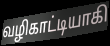
வழிகாட்டியாகி